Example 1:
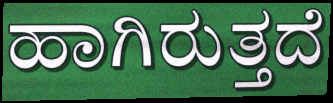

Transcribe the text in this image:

ಹಾಗಿರುತ್ತದೆ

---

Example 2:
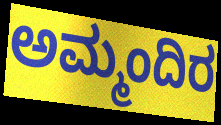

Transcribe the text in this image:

ಅಮ್ಮಂದಿರ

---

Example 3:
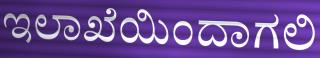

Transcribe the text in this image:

ಇಲಾಖೆಯಿಂದಾಗಲಿ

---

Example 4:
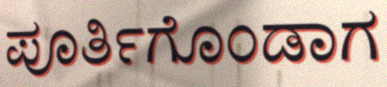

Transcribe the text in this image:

ಪೂರ್ತಿಗೊಂಡಾಗ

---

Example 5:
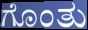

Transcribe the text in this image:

ಗೊಂತು